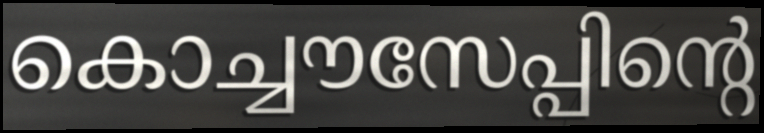
കൊച്ചൗസേപ്പിന്റെ